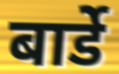
बार्डे